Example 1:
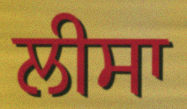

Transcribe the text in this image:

ਲੀਸਾ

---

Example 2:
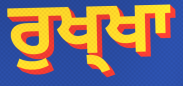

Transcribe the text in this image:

ਰੁਖ੍ਖਾ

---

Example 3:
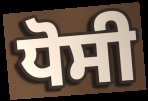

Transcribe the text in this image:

ਧੋਸੀ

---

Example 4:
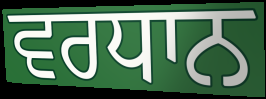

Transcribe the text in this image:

ਵਰਧਾਨ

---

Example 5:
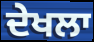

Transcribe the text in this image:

ਦੇਖਲਾ